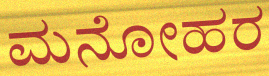
ಮನೋಹರ